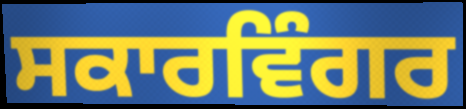
ਸਕਾਰਵਿੰਗਰ